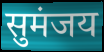
सुमंजय